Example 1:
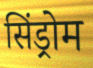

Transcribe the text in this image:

सिंड्रोम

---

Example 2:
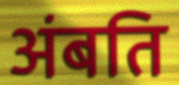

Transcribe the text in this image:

अंबति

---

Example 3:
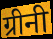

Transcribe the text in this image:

ग्रीनी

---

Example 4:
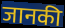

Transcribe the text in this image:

जानकी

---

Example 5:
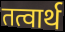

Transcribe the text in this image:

तत्वार्थ